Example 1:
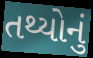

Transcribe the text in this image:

તથ્યોનું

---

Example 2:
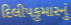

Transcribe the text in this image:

દિલીપકુમારનું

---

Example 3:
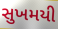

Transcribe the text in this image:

સુખમયી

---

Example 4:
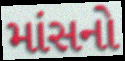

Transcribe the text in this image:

માંસનો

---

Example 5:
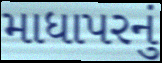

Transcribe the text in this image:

માધાપરનું